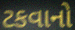
ટકવાનો